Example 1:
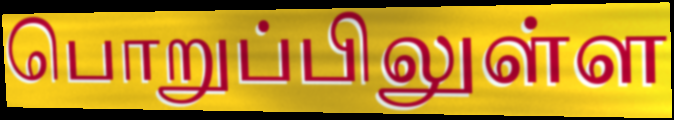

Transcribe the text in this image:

பொறுப்பிலுள்ள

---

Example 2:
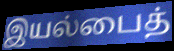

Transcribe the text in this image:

இயல்பைத்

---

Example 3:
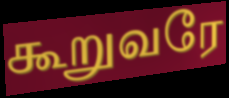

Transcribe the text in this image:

கூறுவரே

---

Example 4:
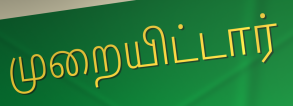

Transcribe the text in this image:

முறையிட்டார்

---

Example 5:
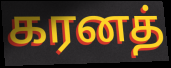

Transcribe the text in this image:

கரனத்